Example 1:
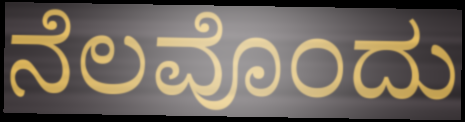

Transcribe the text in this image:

ನೆಲವೊಂದು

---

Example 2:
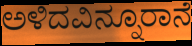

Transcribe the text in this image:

ಅಳಿದವಿನ್ನೂರಾನೆ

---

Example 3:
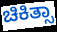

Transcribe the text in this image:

ಚಿಕಿತ್ಸಾ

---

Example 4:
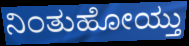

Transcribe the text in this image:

ನಿಂತುಹೋಯ್ತು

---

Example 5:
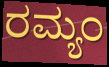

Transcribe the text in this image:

ರಮ್ಯಂ